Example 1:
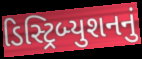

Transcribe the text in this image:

ડિસ્ટ્રિબ્યુશનનું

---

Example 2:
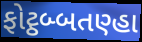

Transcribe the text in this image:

ફોટ્ઠબ્બતણ્હા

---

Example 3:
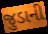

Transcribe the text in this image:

જુડાની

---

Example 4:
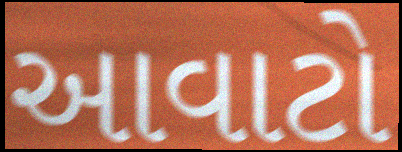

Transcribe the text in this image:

આવાટો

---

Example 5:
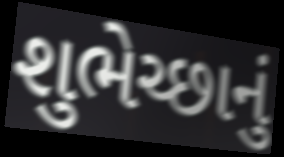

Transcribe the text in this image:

શુભેચ્છાનું